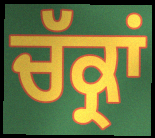
ਚੱਕ੍ਰਾਂ